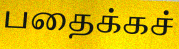
பதைக்கச்